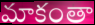
మాకంతా